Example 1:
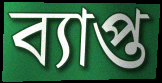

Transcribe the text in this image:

ব্যাপ্ত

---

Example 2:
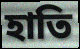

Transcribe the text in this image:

হাতি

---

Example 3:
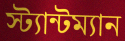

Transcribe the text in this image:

স্ট্যান্টম্যান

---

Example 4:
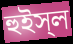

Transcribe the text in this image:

হুইস্‌ল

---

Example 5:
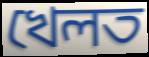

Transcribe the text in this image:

খেলত